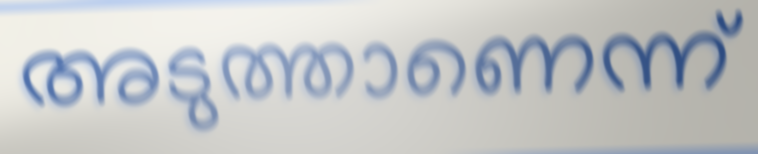
അടുത്താണെന്ന്